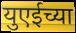
युएईच्या